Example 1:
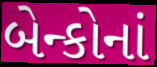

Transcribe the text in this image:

બેન્કોનાં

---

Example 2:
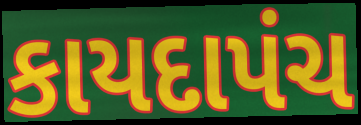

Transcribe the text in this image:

કાયદાપંચ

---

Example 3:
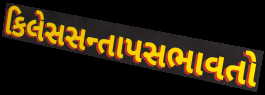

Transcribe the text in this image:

કિલેસસન્તાપસભાવતો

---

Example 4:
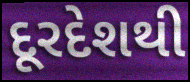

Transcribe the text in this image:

દૂરદેશથી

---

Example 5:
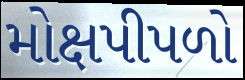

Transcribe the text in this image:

મોક્ષપીપળો